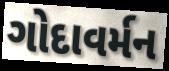
ગોદાવર્મન